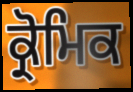
ਕ੍ਰੋਮਿਕ